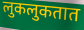
लुकलुकतात